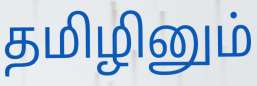
தமிழினும்